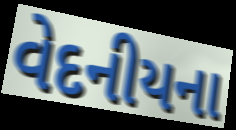
વેદનીયના